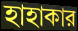
হাহাকার